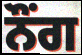
ਨੌਂਗ